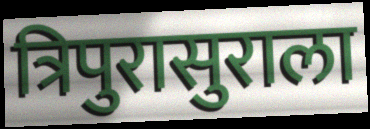
त्रिपुरासुराला